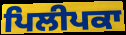
ਪਿਲੀਪਕਾ